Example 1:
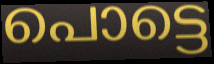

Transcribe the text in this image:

പൊട്ടെ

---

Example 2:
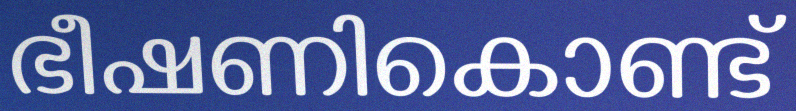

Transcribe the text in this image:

ഭീഷണികൊണ്ട്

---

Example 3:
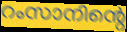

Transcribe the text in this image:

റംസാനിന്റെ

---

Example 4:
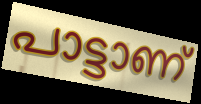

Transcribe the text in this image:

പാട്ടാണ്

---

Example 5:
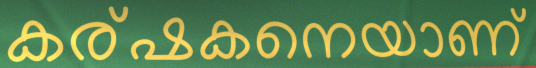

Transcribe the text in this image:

കര്ഷകനെയാണ്